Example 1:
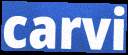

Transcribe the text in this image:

carvi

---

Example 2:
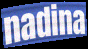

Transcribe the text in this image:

nadina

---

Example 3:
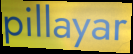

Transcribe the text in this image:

pillayar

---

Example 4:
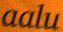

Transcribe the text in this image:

aalu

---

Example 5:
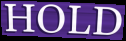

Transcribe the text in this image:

HOLD